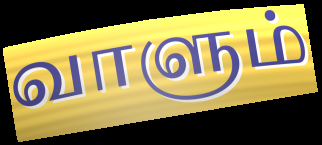
வாளும்